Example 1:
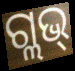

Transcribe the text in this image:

ଗ୍ଲଭ୍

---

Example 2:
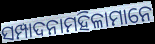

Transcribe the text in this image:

ସମ୍ପାଦନାମହିଳାମାନେ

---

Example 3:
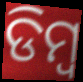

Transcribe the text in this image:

ଡିମ୍ଵ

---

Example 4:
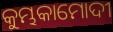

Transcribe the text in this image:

କୁମ୍ଭକାମୋଦୀ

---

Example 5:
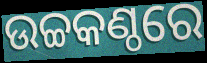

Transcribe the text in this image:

ଉଚ୍ଚକଣ୍ଠରେ